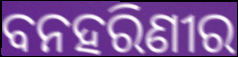
ବନହରିଣୀର